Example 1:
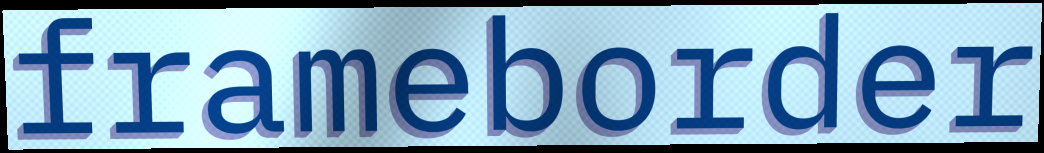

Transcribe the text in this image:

frameborder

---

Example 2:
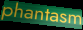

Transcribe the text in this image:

phantasm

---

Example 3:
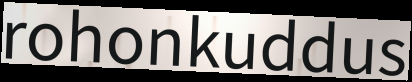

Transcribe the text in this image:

rohonkuddus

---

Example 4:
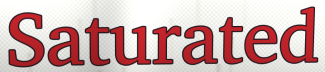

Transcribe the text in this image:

Saturated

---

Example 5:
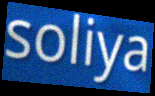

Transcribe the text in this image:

soliya